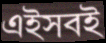
এইসবই